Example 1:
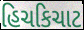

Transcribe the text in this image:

હિચકિચાટ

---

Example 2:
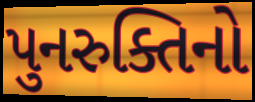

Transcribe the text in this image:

પુનરુક્તિનો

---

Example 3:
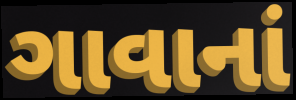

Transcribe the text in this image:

ગાવાનાં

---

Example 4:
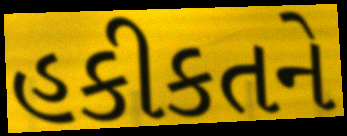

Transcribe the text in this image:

હકીકતને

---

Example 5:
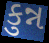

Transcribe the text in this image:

કુન્ન